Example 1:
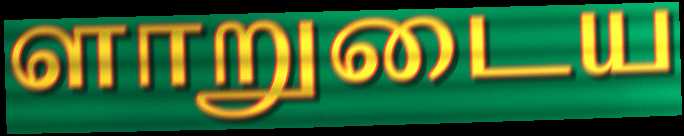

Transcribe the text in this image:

ளாறுடைய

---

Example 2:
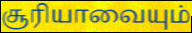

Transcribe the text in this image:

சூரியாவையும்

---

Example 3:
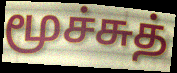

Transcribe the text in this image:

மூச்சுத்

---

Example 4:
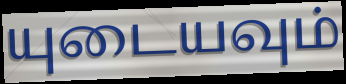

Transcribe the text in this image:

யுடையவும்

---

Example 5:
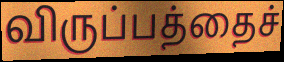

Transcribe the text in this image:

விருப்பத்தைச்